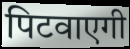
पिटवाएगी